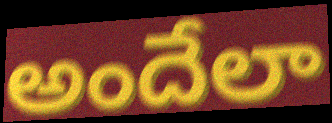
అందేలా